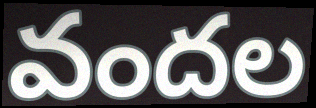
వందల